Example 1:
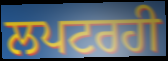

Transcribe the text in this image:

ਲਪਟਰਹੀ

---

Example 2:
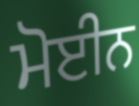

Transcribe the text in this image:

ਮੋਈਨ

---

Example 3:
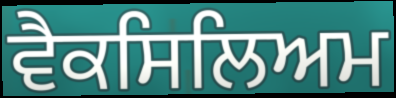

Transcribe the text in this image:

ਵੈਕਸਿਲਿਅਮ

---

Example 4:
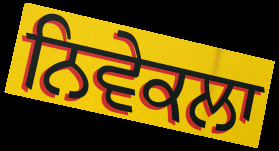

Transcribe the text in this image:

ਨਿਵੇਕਲਾ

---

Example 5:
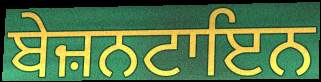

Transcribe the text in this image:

ਬੇਜ਼ਨਟਾਇਨ